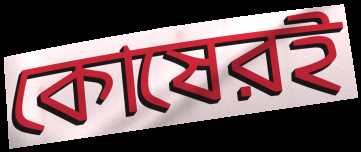
কোষেরই